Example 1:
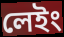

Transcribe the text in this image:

লেইং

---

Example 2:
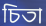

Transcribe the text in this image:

চিতা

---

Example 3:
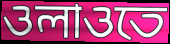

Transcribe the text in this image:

ওলাওতে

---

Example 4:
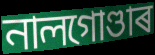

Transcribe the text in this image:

নালগোণ্ডাৰ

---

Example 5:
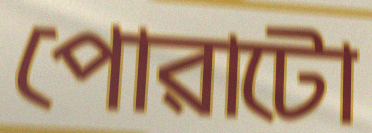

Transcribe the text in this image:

পোৱাটো